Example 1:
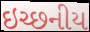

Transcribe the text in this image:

ઇચ્છનીય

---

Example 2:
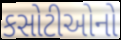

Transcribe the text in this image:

કસોટીઓનો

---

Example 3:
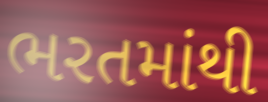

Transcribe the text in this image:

ભરતમાંથી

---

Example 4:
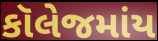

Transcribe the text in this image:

કૉલેજમાંય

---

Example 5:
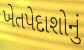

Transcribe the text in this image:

ખેતપેદાશોનું